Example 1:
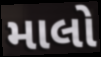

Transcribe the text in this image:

માલો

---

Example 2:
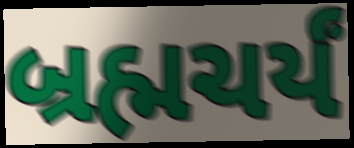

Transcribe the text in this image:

બ્રહ્મચર્યં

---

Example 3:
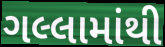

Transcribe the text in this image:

ગલ્લામાંથી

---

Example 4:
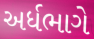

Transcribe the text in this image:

અર્ધભાગે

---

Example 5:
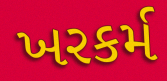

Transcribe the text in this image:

ખરકર્મ